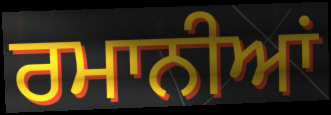
ਰਮਾਨੀਆਂ